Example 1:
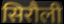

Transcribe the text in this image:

सिरौली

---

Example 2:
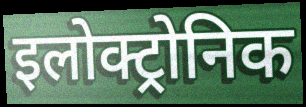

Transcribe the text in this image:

इलोक्ट्रोनिक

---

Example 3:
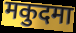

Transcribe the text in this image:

मकुदमा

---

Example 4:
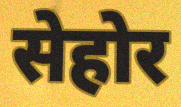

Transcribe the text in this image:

सेहोर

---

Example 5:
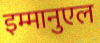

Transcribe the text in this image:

इम्मानुएल